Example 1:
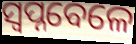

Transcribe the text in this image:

ସ୍ଵପ୍ନବେଳେ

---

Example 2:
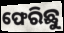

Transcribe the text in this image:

ଫେରିଛୁ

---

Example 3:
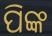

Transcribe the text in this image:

ପିଙ୍କ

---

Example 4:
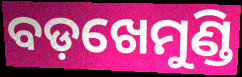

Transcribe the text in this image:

ବଡ଼ଖେମୁଣ୍ଡି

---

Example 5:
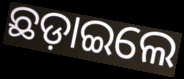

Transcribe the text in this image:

ଛଡ଼ାଇଲେ